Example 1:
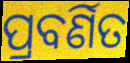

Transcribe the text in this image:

ପ୍ରବର୍ଣିତ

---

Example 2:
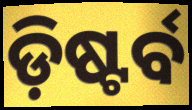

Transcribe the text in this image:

ଡ଼ିଷ୍ଟର୍ବ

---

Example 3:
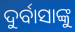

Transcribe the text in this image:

ଦୁର୍ବାସାଙ୍କୁ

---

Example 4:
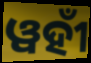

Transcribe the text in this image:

ୱହୀଁ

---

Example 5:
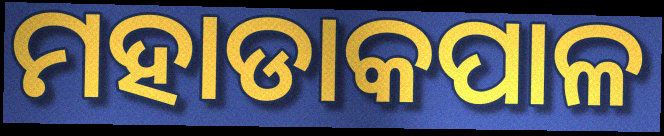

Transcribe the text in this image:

ମହାଡାକପାଳ